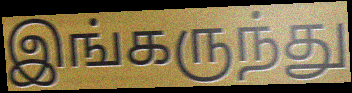
இங்கருந்து